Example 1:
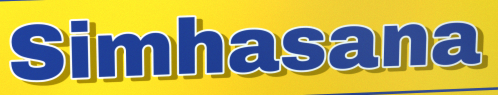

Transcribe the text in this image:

Simhasana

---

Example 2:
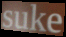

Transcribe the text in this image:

suke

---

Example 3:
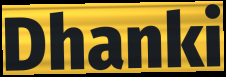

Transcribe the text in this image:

Dhanki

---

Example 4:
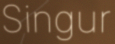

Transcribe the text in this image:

Singur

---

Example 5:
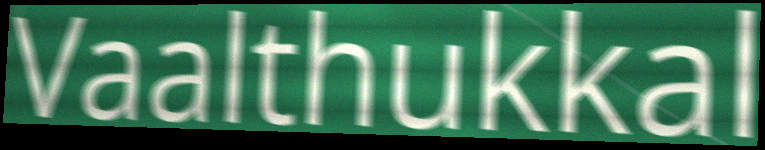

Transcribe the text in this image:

Vaalthukkal